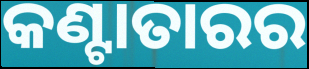
କଣ୍ଟାତାରର